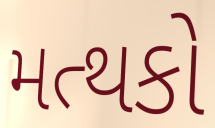
મત્થકો